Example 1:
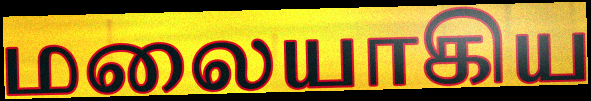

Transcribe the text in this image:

மலையாகிய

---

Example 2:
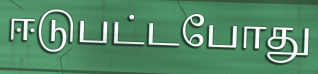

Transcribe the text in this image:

ஈடுபட்டபோது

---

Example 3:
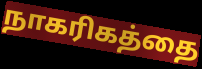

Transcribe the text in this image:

நாகரிகத்தை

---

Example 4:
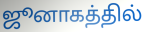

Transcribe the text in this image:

ஜூனாகத்தில்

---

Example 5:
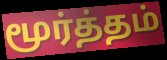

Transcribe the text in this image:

மூர்த்தம்